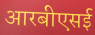
आरबीएसई